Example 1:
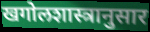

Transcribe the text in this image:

खगोलशास्त्रानुसार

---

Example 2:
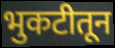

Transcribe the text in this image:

भुकटीतून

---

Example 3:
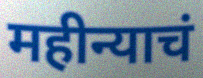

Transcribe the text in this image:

महीन्याचं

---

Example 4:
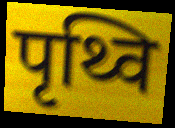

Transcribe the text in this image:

पृथ्वि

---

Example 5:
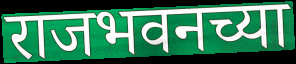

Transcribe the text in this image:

राजभवनच्या